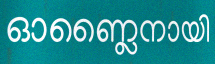
ഓണ്ലൈനായി